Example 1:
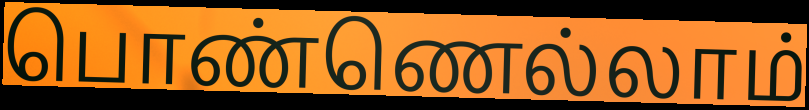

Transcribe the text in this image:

பொண்ணெல்லாம்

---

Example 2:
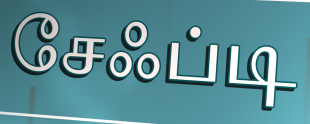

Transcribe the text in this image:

சேஃப்டி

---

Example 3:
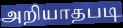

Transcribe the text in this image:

அறியாதபடி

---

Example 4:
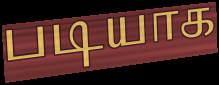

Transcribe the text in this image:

படியாக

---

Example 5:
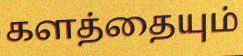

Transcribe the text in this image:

களத்தையும்